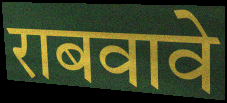
राबवावे